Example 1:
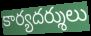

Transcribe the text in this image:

కార్యదర్శులు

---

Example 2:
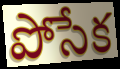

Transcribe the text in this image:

పోసేక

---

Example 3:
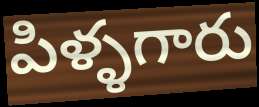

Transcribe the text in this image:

పిళ్ళగారు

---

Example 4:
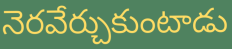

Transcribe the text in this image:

నెరవేర్చుకుంటాడు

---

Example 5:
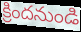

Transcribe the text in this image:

క్రిందనుండి